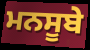
ਮਨਸੂਬੇ